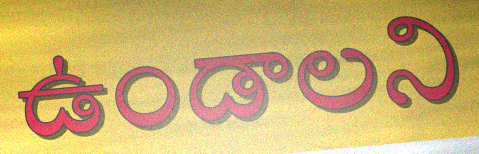
ఉండాలని